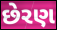
છેરણ